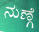
ನುಣ್ಗೆ